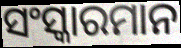
ସଂସ୍କାରମାନ